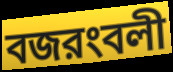
বজরংবলী